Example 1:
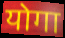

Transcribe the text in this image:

योगा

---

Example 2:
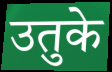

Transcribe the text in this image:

उतुके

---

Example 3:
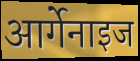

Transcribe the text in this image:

आर्गेनाइज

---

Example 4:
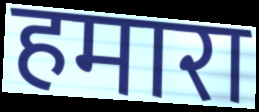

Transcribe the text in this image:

हमारा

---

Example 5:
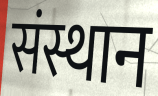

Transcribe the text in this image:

संस्थान